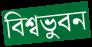
বিশ্বভুবন